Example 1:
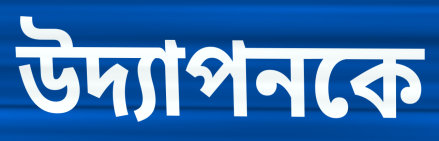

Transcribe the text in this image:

উদ্যাপনকে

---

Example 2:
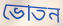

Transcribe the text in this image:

ভোতন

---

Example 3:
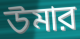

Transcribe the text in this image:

উমার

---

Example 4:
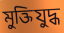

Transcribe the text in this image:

মুক্তিযুদ্ধ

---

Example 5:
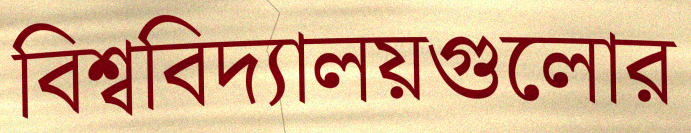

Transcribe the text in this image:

বিশ্ববিদ্যালয়গুলোর